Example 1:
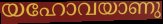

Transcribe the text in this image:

യഹോവയാണു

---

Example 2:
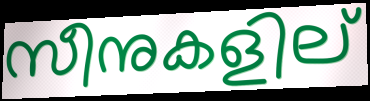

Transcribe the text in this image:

സീനുകളില്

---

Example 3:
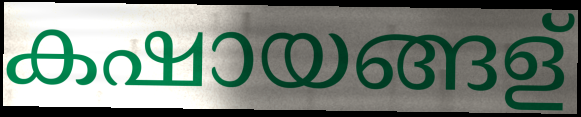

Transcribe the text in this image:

കഷായങ്ങള്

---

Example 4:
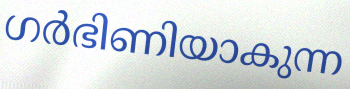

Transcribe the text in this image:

ഗർഭിണിയാകുന്ന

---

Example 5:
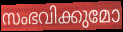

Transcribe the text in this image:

സംഭവിക്കുമോ